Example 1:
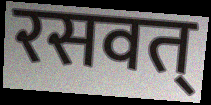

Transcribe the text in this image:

रसवत्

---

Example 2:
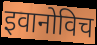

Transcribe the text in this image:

इवानोविच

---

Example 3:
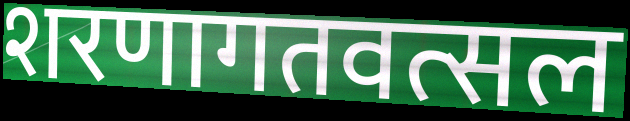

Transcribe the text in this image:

शरणागतवत्सल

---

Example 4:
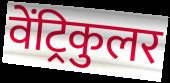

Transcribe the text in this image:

वेंट्रिकुलर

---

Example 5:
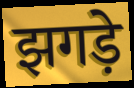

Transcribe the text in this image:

झगड़े